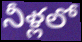
నీళ్లలో